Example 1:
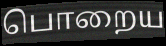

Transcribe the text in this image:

பொறைய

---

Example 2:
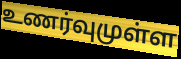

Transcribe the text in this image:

உணர்வுமுள்ள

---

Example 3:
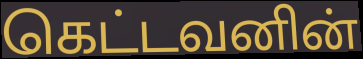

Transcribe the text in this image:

கெட்டவனின்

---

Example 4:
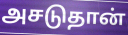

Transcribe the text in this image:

அசடுதான்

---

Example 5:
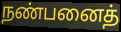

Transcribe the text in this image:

நண்பனைத்